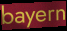
bayern